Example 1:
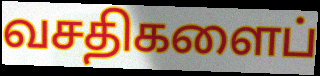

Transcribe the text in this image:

வசதிகளைப்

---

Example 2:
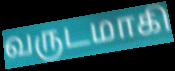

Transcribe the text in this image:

வருடமாகி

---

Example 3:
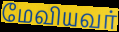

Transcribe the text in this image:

மேவியவர்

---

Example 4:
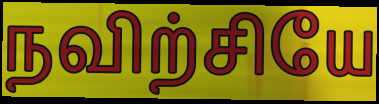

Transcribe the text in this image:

நவிற்சியே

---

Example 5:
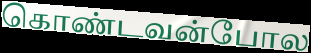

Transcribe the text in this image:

கொண்டவன்போல